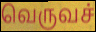
வெருவச்